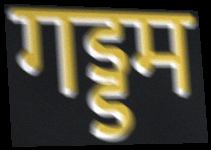
गड्डम